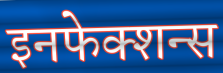
इनफेक्शन्स